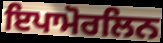
ਇਪਾਮੋਰਲਿਨ